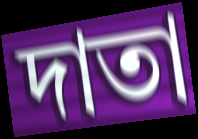
দাতা